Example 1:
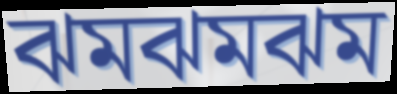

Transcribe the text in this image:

ঝমঝমঝম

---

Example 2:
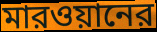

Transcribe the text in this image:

মারওয়ানের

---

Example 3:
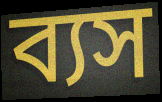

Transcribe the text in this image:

ব্যস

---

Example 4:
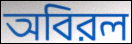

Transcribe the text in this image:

অবিরল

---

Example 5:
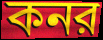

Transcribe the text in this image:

কনর